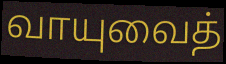
வாயுவைத்